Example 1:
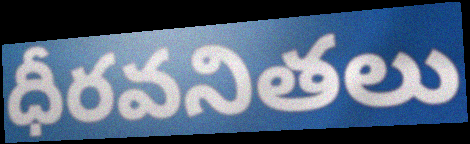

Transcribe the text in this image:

ధీరవనితలు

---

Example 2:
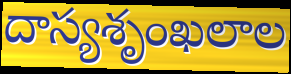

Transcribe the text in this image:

దాస్యశృంఖలాల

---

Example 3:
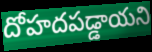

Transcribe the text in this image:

దోహదపడ్డాయని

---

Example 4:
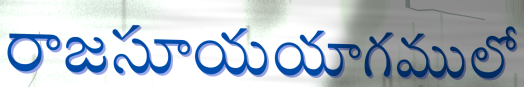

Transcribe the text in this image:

రాజసూయయాగములో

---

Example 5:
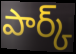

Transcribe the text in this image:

పార్క్